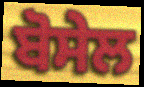
ਬੋਸੇਲ